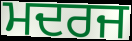
ਮਦਰਜ